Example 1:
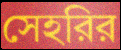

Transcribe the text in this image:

সেহরির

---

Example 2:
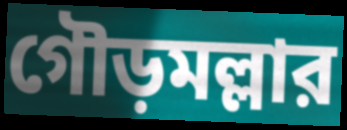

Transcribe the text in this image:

গৌড়মল্লার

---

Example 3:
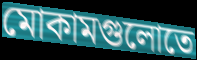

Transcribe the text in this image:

মোকামগুলোতে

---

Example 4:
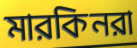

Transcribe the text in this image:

মারকিনরা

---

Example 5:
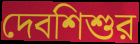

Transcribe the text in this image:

দেবশিশুর